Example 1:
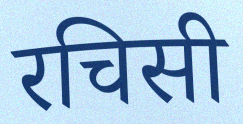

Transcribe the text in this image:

रचिसी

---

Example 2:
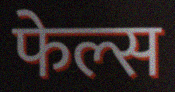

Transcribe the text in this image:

फेल्स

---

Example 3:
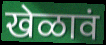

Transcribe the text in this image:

खेळावं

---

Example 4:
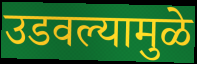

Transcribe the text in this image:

उडवल्यामुळे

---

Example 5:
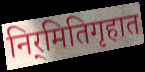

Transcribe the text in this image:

निर्मितिगृहात